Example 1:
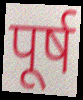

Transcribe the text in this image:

पूर्ष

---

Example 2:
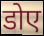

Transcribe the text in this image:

डोए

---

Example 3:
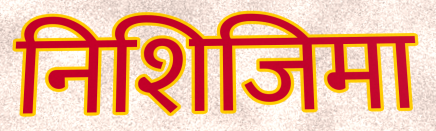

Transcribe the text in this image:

निशिजिमा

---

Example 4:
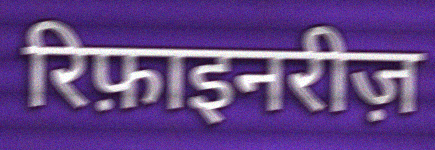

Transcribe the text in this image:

रिफ़ाइनरीज़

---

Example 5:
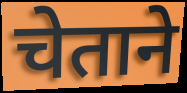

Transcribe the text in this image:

चेताने